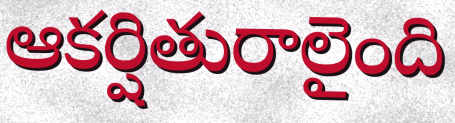
ఆకర్షితురాలైంది